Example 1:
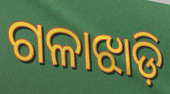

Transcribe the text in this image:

ଗଳାଝାଡ଼ି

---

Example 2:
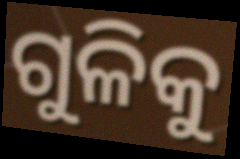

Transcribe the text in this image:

ଗୁଳିକୁ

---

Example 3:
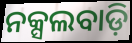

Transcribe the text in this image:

ନକ୍ସଲବାଡ଼ି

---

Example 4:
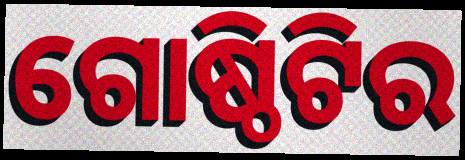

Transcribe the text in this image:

ଗୋଷ୍ଠିଟିର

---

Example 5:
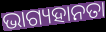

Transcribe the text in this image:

ଭାଗ୍ୟହାନତା